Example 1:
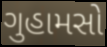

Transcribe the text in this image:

ગુહામસો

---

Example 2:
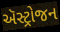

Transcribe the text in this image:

ઍસ્ટ્રોજન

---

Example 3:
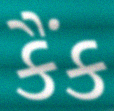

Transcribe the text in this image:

કૈંક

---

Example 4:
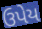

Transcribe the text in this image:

ઉપેય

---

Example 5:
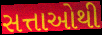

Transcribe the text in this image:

સત્તાઓથી